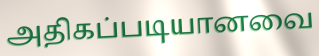
அதிகப்படியானவை